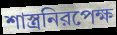
শাস্ত্রনিরপেক্ষ